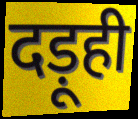
दड़ूही